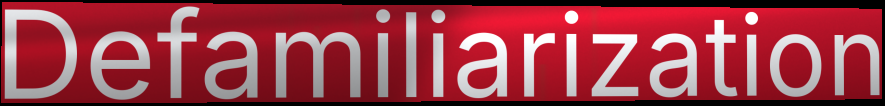
Defamiliarization